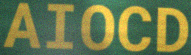
AIOCD